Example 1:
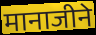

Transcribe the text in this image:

मानाजीने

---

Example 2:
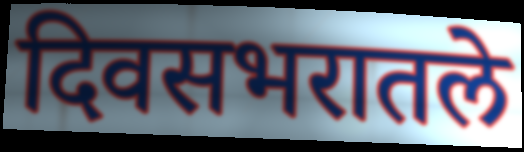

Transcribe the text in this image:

दिवसभरातले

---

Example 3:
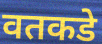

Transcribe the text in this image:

वतकडे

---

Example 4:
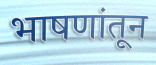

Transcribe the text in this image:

भाषणांतून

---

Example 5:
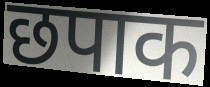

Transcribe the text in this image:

छपाक